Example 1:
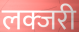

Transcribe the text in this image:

लक्‍जरी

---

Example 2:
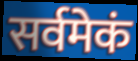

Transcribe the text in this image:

सर्वमेकं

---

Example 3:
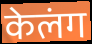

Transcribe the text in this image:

केलंग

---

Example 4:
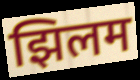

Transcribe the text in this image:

झिलम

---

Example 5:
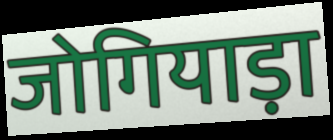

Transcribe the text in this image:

जोगियाड़ा